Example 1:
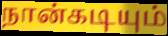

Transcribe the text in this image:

நான்கடியும்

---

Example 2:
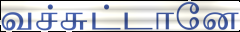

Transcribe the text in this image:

வச்சுட்டானே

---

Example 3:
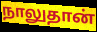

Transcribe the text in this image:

நாலுதான்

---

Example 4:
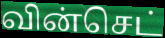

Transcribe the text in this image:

வின்செட்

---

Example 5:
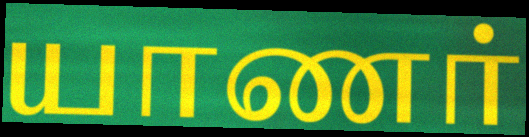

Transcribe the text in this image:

யாணர்